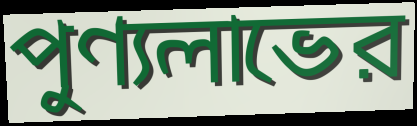
পুণ্যলাভের